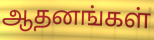
ஆதனங்கள்